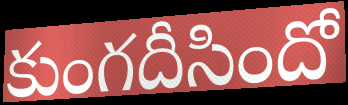
కుంగదీసిందో